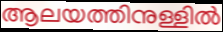
ആലയത്തിനുള്ളിൽ